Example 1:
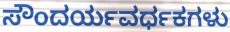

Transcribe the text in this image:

ಸೌಂದರ್ಯವರ್ಧಕಗಳು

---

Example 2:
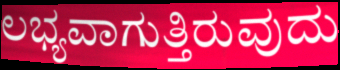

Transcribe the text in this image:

ಲಭ್ಯವಾಗುತ್ತಿರುವುದು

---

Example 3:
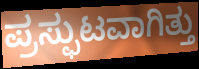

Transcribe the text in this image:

ಪ್ರಸ್ಫುಟವಾಗಿತ್ತು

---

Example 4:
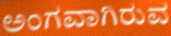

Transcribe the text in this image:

ಅಂಗವಾಗಿರುವ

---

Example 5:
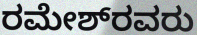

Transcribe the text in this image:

ರಮೇಶ್‌ರವರು